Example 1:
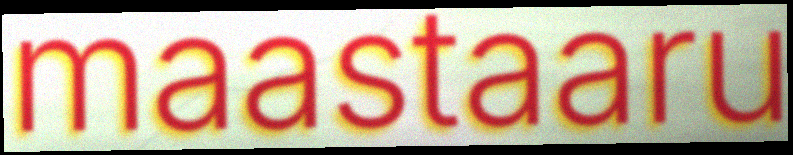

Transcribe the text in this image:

maastaaru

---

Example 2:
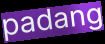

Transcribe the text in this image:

padang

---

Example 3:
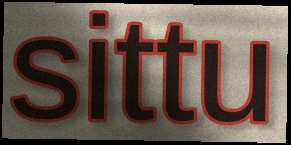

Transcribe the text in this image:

sittu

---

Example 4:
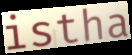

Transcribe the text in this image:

istha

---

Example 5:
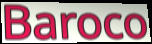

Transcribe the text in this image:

Baroco